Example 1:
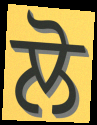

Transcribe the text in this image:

ਲੋ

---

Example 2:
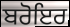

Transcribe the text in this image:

ਬਰੋਇਰ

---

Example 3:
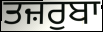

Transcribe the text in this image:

ਤਜ਼ਰੁਬਾ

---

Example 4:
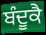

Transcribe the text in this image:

ਬੰਦੂਕੈ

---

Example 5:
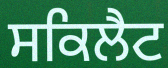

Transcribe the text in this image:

ਸਕਿਲੈਟ